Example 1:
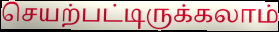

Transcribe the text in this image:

செயற்பட்டிருக்கலாம்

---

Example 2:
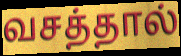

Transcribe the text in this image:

வசத்தால்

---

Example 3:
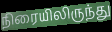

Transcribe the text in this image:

நிரையிலிருந்து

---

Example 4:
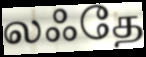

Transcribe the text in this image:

லஃதே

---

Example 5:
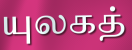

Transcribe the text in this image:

யுலகத்